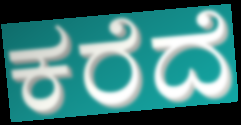
ಕರೆದೆ